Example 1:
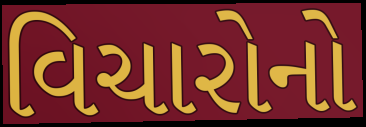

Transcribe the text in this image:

વિચારોનો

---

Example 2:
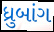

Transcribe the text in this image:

ધ્રુબાંગ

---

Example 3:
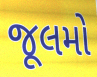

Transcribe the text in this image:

જૂલમો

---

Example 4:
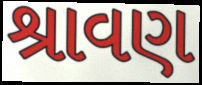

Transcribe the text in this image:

શ્રાવણ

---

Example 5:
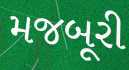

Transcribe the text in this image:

મજબૂરી